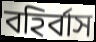
বহির্বাস